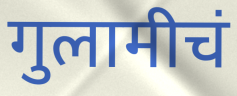
गुलामीचं